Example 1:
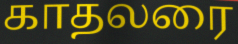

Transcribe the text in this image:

காதலரை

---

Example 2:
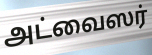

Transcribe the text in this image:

அட்வைஸர்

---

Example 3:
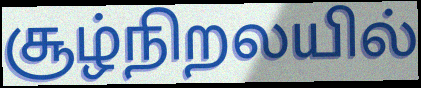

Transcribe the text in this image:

சூழ்நிறலயில்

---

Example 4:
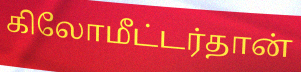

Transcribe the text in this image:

கிலோமீட்டர்தான்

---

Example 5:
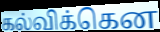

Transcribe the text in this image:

கல்விக்கென